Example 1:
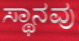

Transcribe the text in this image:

ಸ್ಥಾನವು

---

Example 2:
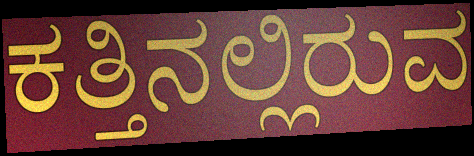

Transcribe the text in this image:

ಕತ್ತಿನಲ್ಲಿರುವ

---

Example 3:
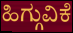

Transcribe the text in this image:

ಹಿಗ್ಗುವಿಕೆ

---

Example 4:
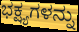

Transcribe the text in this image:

ಭಕ್ಷ್ಯಗಳನ್ನು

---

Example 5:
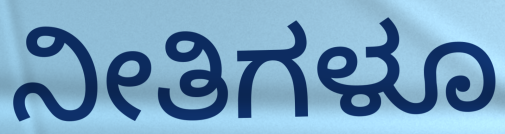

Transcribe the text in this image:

ನೀತಿಗಳೂ